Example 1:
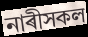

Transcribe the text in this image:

নাৰীসকল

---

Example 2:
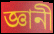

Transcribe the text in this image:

জ্ঞানী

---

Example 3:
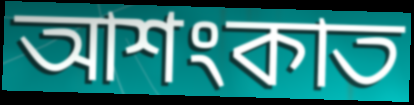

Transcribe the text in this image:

আশংকাত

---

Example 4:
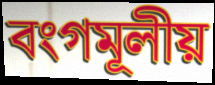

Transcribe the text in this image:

বংগমূলীয়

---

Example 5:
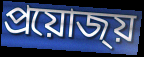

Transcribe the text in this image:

প্ৰয়োজ্য়